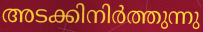
അടക്കിനിർത്തുന്നു